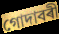
গোদাবৰী